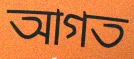
আগত